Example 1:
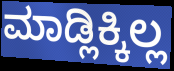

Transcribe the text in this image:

ಮಾಡ್ಲಿಕ್ಕಿಲ್ಲ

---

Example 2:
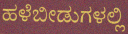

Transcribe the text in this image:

ಹಳೆಬೀಡುಗಳಲ್ಲಿ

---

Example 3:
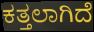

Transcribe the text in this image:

ಕತ್ತಲಾಗಿದೆ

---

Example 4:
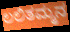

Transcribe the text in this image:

ಲಲಿತಮ್ಮನ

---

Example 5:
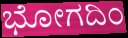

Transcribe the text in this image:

ಭೋಗದಿಂ